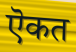
ऎकत